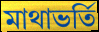
মাথাভর্তি